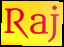
Raj